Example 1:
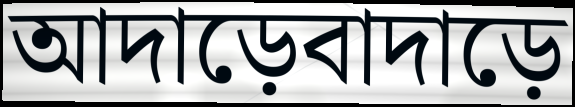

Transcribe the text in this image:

আদাড়েবাদাড়ে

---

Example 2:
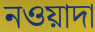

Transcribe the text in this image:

নওয়াদা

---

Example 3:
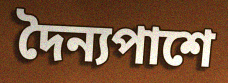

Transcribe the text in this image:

দৈন্যপাশে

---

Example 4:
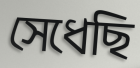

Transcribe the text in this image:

সেধেছি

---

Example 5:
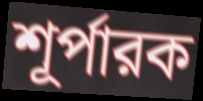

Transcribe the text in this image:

শূর্পারক